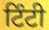
ਟਿੰਟੀ